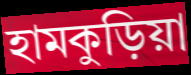
হামকুড়িয়া